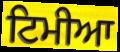
ਟਿਮੀਆ